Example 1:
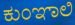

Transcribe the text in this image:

ಕುಂಞಾಲಿ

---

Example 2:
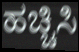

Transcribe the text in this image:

ಹಚ್ಚಿಸಿ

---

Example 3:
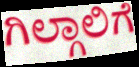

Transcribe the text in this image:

ಗಿಲ್ಗಾಲಿಗೆ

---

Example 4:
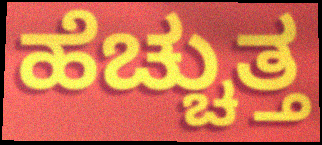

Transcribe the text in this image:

ಹೆಚ್ಚುತ್ತ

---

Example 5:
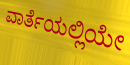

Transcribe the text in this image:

ವಾರ್ತೆಯಲ್ಲಿಯೇ